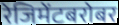
रेजिमेंटबरोबर